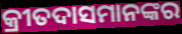
କ୍ରୀତଦାସମାନଙ୍କର